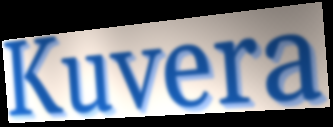
Kuvera